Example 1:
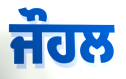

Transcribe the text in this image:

ਜੌਹਲ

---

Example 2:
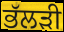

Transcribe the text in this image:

ਭੱਲੜੀ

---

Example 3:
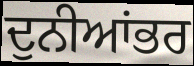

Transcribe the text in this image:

ਦੁਨੀਆਂਭਰ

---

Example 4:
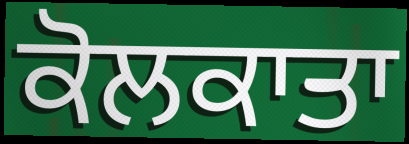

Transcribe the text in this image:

ਕੋਲਕਾਤਾ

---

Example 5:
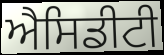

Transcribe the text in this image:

ਐਸਿਡੀਟੀ